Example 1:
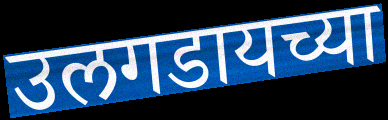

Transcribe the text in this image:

उलगडायच्या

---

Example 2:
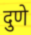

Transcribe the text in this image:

दुणे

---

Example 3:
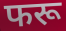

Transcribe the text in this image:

फरू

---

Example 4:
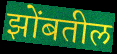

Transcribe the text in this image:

झोंबतील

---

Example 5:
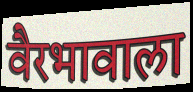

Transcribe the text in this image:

वैरभावाला